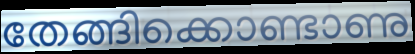
തേങ്ങിക്കൊണ്ടാണു